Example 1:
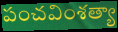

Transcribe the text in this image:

పంచవింశత్యా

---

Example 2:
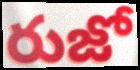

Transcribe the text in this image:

రుజో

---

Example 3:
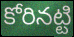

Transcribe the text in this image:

కోరినట్టి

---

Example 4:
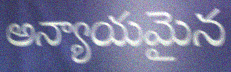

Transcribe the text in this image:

అన్యాయమైన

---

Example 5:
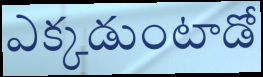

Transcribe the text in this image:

ఎక్కడుంటాడో